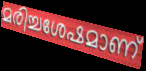
മരിച്ചശേഷമാണ്